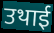
उथाई